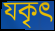
যকৃৎ